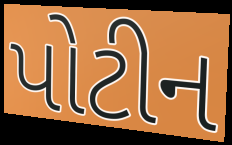
પોટીન